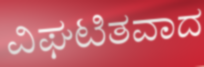
ವಿಘಟಿತವಾದ